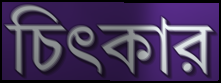
চিৎকার